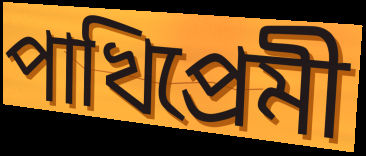
পাখিপ্রেমী